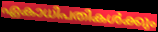
ഏകാധിപതികൾക്കും